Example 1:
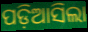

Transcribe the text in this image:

ପଡ଼ିଆସିଲା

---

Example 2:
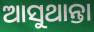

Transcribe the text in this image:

ଆସୁଥାନ୍ତା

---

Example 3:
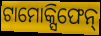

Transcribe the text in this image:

ଟାମୋକ୍ସିଫେନ୍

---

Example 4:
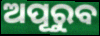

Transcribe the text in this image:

ଅପୂରୁବ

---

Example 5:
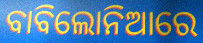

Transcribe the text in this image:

ବାବିଲୋନିଆରେ